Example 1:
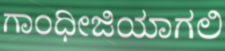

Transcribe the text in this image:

ಗಾಂಧೀಜಿಯಾಗಲಿ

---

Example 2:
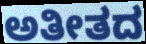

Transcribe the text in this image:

ಅತೀತದ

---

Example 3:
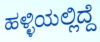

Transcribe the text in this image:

ಹಳ್ಳಿಯಲ್ಲಿದ್ದೆ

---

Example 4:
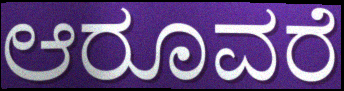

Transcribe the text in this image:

ಆರೂವರೆ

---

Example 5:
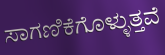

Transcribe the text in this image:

ಸಾಗಣಿಕೆಗೊಳ್ಳುತ್ತವೆ